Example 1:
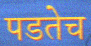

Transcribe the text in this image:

पडतेच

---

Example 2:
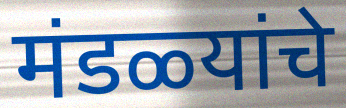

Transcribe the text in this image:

मंडळ्यांचे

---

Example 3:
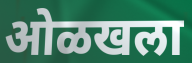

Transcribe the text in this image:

ओळखला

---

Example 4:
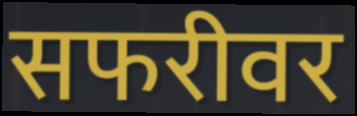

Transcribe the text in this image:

सफरीवर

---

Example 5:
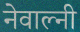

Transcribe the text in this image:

नेवाल्नी